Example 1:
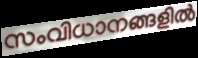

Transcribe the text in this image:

സംവിധാനങ്ങളിൽ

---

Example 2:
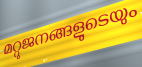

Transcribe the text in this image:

മറ്റുജനങ്ങളുടെയും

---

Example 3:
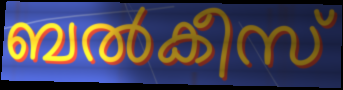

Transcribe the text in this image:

ബൽകീസ്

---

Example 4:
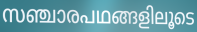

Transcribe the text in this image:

സഞ്ചാരപഥങ്ങളിലൂടെ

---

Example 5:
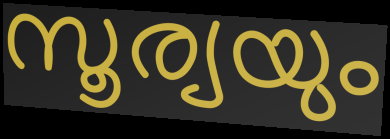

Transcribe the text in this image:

സൂര്യയും